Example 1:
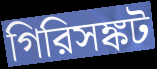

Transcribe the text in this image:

গিরিসঙ্কট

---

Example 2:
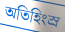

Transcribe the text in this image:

অতিহিংস্র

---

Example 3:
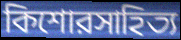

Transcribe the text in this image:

কিশোরসাহিত্য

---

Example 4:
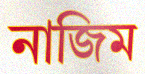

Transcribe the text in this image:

নাজিম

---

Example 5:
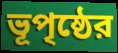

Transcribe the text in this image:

ভূপৃষ্ঠের